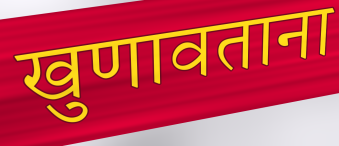
खुणावताना